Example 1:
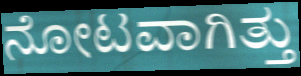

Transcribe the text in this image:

ನೋಟವಾಗಿತ್ತು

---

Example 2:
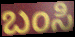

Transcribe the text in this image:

ಬಂಸಿ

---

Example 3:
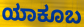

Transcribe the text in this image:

ಯಾಕೂಬ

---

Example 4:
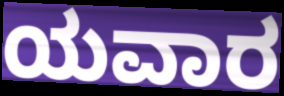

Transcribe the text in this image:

ಯವಾರ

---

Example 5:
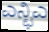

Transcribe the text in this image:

ಎನ್ಟಿಎ